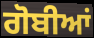
ਗੋਬੀਆਂ